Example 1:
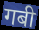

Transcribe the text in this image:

गबी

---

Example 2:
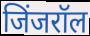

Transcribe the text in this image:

जिंजरॉल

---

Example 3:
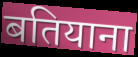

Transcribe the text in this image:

बतियाना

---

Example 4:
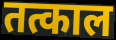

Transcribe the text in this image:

तत्काल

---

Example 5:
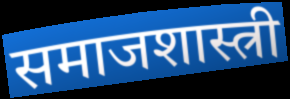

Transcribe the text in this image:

समाजशास्त्री